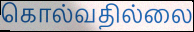
கொல்வதில்லை